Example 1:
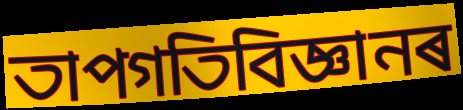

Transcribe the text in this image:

তাপগতিবিজ্ঞানৰ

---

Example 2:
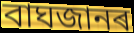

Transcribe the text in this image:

বাঘজানৰ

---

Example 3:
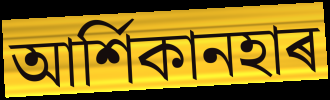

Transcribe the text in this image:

আৰ্শিকানহাৰ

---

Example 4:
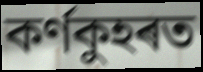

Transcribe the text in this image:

কৰ্ণকুহৰত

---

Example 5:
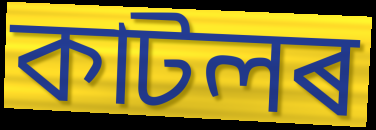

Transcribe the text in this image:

কাটলৰ